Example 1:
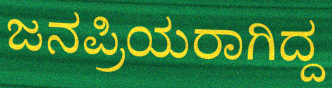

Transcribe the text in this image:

ಜನಪ್ರಿಯರಾಗಿದ್ದ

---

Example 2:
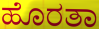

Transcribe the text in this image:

ಹೊರತಾ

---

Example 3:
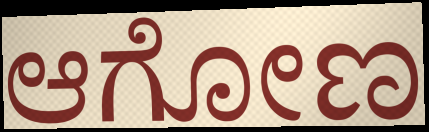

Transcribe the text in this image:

ಆಗೋಣ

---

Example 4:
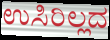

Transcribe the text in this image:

ಉಸಿರಿಲ್ಲದ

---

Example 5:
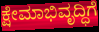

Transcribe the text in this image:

ಕ್ಷೇಮಾಭಿವೃದ್ಧಿಗೆ